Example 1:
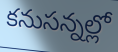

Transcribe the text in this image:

కనుసన్నల్లో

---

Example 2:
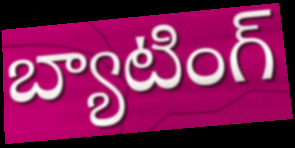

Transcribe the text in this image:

బ్యాటింగ్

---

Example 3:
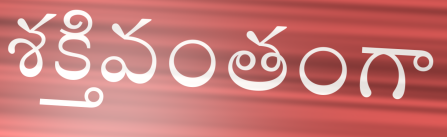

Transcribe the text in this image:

శక్తివంతంగా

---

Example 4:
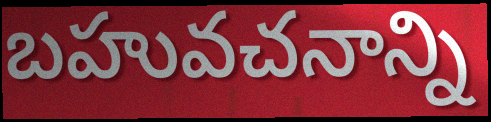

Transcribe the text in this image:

బహువచనాన్ని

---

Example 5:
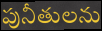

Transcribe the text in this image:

పునీతులను